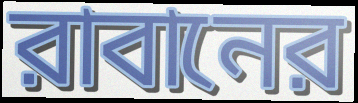
রাবানের